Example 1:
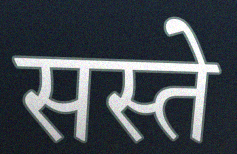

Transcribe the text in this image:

सस्ते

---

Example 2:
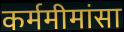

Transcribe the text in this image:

कर्ममीमांसा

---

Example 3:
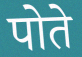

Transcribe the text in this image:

पोते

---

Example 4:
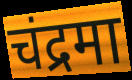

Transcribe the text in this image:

चंद्रमा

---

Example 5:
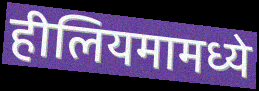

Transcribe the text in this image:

हीलियमामध्ये